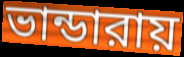
ভান্ডারায়